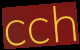
cch